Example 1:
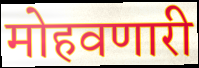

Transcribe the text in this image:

मोहवणारी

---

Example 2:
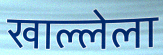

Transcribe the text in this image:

खाल्लेला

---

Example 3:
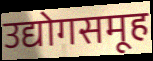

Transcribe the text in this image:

उद्योगसमूह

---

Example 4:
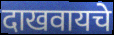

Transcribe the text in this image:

दाखवायचे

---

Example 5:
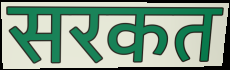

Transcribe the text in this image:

सरकत